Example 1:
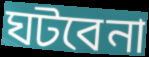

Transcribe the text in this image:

ঘটবেনা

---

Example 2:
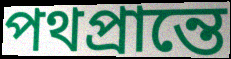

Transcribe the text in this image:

পথপ্রান্তে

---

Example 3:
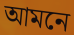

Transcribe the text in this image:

আমনে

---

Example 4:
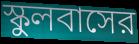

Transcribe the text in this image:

স্কুলবাসের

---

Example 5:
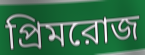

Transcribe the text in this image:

প্রিমরোজ